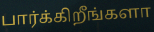
பார்க்கிறீங்களா